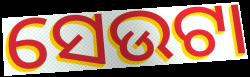
ସେଉଟା